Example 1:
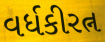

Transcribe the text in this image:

વર્ધકીરત્ન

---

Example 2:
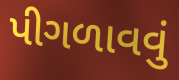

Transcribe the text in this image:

પીગળાવવું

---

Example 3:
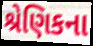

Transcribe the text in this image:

શ્રેણિકના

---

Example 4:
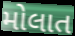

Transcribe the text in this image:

મોલાત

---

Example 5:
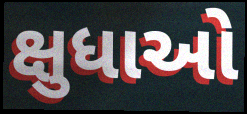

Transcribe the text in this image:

ક્ષુધાઓ